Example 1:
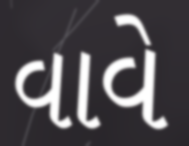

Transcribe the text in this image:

વાવે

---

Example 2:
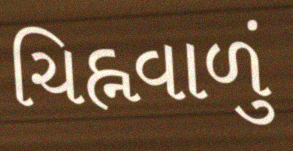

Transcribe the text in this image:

ચિહ્નવાળું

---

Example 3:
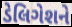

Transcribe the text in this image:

ડેલિગેશને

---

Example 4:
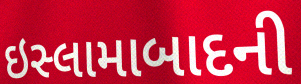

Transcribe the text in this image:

ઇસ્લામાબાદની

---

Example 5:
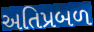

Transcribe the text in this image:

અતિપ્રબળ